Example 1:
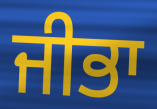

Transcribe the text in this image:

ਜੀਭਾ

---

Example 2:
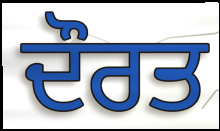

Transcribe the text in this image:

ਦੌਰਤ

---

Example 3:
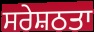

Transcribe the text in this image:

ਸਰੇਸ਼ਠਤਾ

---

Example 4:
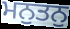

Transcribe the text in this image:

ਮਨੁਤਨੁ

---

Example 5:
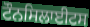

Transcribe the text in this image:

ਟੌਨਸਿਲਾਈਟਸ